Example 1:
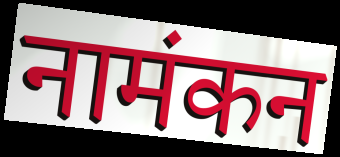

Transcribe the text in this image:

नामंकन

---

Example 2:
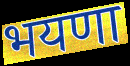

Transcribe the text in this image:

भयणा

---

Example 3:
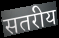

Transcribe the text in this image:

सतरीय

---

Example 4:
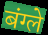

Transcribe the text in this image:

बंग्ले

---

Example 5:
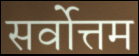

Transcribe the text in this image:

सर्वोत्तम